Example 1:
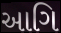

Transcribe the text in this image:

આગિ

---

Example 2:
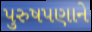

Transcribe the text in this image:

પુરુષપણાને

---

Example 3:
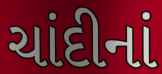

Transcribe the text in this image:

ચાંદીનાં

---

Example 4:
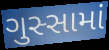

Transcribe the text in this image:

ગુસ્સામાં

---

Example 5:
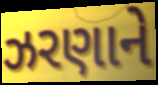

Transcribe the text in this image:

ઝરણાને